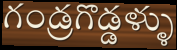
గండ్రగొడ్డళ్ళు